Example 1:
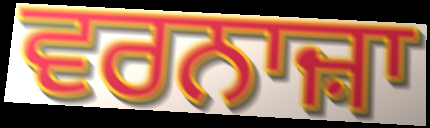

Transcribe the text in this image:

ਵਰਨਾਜ਼ਾ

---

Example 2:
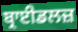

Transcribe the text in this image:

ਬ੍ਰਾਈਡਲਜ਼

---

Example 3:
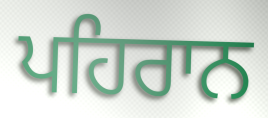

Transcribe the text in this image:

ਪਹਿਰਾਨ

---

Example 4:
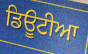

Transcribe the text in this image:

ਡਿਊਟੀਆ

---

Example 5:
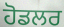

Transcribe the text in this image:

ਹੋਡਲਰ